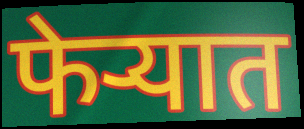
फेऱ्यात